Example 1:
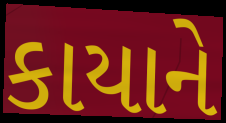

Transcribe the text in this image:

કાયાને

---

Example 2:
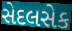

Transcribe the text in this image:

સેદલસેક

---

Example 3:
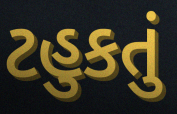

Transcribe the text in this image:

ટહુકતું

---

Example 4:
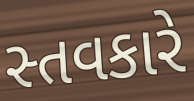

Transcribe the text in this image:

સ્તવકારે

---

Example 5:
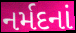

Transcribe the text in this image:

નર્મદનાં